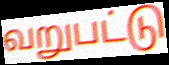
வறுபட்டு